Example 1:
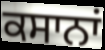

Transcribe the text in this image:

ਕਸਾਨਾਂ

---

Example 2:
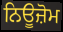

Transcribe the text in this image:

ਨਿਊਜ਼ੋਮ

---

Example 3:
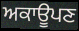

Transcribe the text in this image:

ਅਕਾਊਪਣ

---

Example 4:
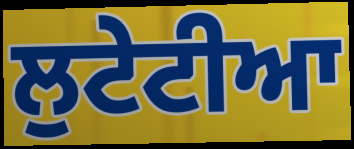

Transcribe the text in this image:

ਲੁਟੇਟੀਆ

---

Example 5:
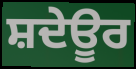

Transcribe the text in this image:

ਸ਼ਦੇਊਰ